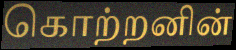
கொற்றனின்